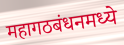
महागठबंधनमध्ये